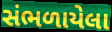
સંભળાયેલા